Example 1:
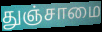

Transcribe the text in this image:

துஞ்சாமை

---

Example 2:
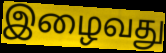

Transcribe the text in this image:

இழைவது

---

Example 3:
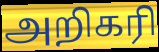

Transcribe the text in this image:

அறிகரி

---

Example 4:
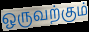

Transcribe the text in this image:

ஒருவற்கும்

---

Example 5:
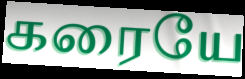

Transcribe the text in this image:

கரையே